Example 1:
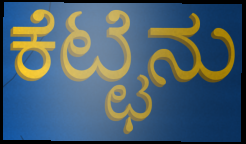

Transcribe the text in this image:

ಕೆಟ್ಟೆನು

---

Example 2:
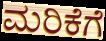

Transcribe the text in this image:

ಮರಿಕೆಗೆ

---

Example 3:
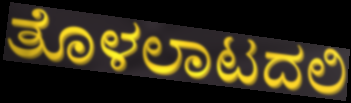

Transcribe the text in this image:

ತೊಳಲಾಟದಲಿ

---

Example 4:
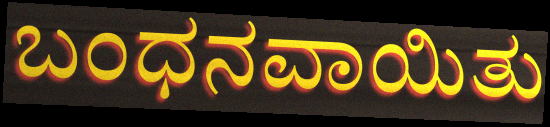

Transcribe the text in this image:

ಬಂಧನವಾಯಿತು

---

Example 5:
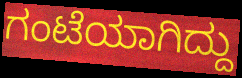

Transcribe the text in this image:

ಗಂಟೆಯಾಗಿದ್ದು